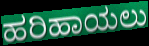
ಹರಿಹಾಯಲು